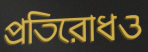
প্রতিরোধও